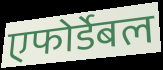
एफोर्डेबल